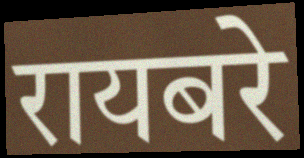
रायबरे